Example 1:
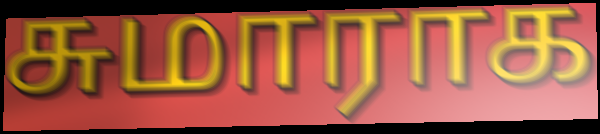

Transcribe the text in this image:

சுமாராக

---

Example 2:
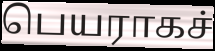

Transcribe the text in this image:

பெயராகச்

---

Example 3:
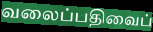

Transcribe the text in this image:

வலைப்பதிவைப்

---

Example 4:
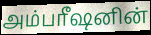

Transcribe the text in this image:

அம்பரீஷனின்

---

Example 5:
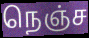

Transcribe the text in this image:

நெஞ்ச